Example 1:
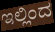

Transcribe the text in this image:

ಇಲ್ಲಿಂದ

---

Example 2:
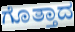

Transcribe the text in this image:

ಗೊತ್ತಾದ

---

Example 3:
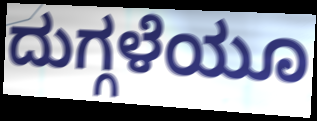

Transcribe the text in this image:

ದುಗ್ಗಳೆಯೂ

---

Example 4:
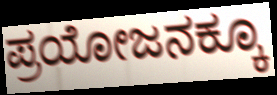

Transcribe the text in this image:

ಪ್ರಯೋಜನಕ್ಕೂ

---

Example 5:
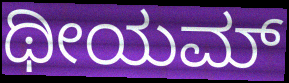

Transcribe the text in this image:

ಥೀಯಮ್